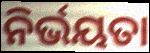
ନିର୍ଭୟତା